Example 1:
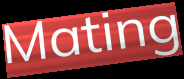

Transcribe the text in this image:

Mating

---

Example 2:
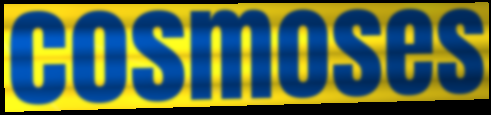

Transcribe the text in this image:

cosmoses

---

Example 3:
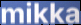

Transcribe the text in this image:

mikka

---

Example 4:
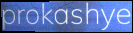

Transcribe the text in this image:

prokashye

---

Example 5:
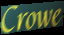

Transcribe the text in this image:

Crowe